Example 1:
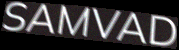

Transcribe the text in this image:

SAMVAD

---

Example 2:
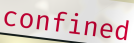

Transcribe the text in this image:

confined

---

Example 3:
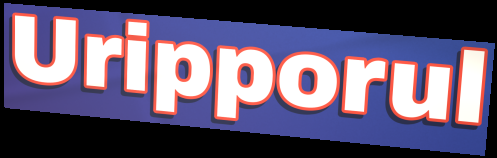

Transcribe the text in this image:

Uripporul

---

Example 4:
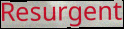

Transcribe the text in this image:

Resurgent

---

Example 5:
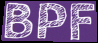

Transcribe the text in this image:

BPF